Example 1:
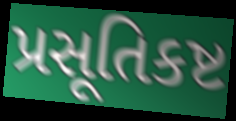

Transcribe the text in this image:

પ્રસૂતિકષ્ટ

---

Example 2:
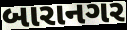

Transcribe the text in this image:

બારાનગર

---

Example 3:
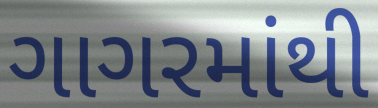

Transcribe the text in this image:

ગાગરમાંથી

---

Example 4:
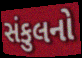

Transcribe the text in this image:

સંકુલનો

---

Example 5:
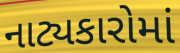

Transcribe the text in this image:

નાટ્યકારોમાં